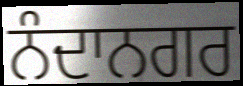
ਨੰਦਾਨਗਰ